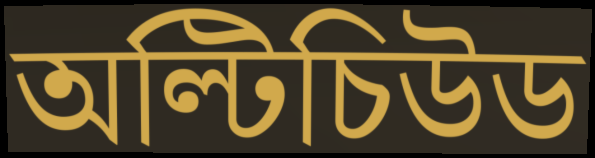
অল্টিচিউড